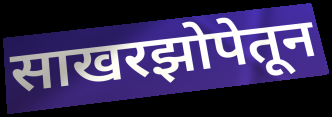
साखरझोपेतून